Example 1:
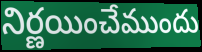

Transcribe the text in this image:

నిర్ణయించేముందు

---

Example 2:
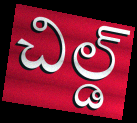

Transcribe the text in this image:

చిల్డ్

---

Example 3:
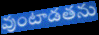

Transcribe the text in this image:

వుంటాడతను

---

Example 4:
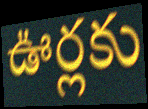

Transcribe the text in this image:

ఊర్లకు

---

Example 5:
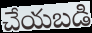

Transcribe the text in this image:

చేయబడి